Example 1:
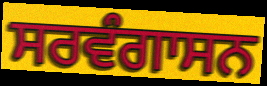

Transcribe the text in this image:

ਸਰਵੰਗਾਸਨ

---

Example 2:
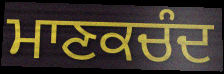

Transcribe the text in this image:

ਮਾਣਕਚੰਦ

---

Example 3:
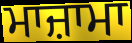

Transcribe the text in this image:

ਮਾਜ਼ਾਮਾ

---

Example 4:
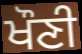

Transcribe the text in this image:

ਖੌਣੀ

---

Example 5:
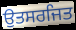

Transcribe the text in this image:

ਉਤਸਰਜਿਤ